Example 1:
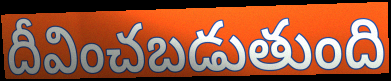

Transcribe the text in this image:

దీవించబడుతుంది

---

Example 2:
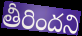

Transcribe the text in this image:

తీరిందని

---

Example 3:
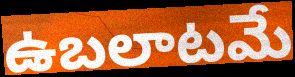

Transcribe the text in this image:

ఉబలాటమే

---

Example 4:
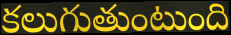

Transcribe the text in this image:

కలుగుతుంటుంది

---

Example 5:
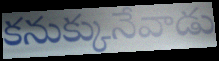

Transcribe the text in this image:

కనుక్కునేవాడు